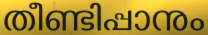
തീണ്ടിപ്പാനും